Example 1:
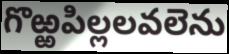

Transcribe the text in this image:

గొఱ్ఱపిల్లలవలెను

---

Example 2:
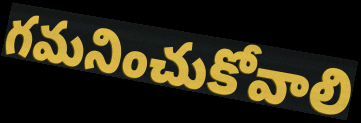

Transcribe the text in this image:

గమనించుకోవాలి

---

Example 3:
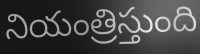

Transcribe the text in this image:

నియంత్రిస్తుంది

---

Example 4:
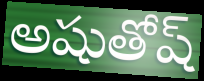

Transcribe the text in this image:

అషుతోష్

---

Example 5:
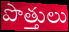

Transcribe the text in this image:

పొత్తులు